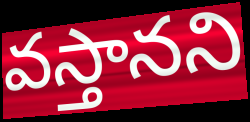
వస్తానని